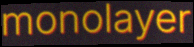
monolayer